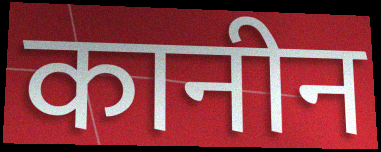
कानीन